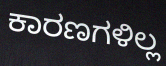
ಕಾರಣಗಳಿಲ್ಲ